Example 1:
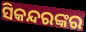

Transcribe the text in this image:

ସିକନ୍ଦରଙ୍କର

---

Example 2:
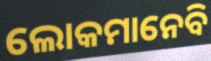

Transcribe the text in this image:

ଲୋକମାନେବି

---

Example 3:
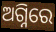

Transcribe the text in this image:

ଅଗ୍ନିରେ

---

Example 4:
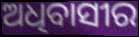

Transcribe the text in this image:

ଅଧିବାସୀର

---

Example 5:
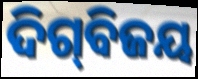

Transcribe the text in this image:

ଦିଗ୍‌ବିଜୟ